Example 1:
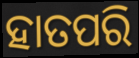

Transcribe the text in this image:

ହାତପରି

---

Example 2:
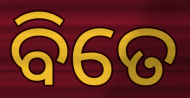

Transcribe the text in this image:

ବିତେ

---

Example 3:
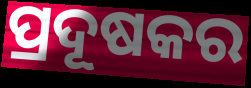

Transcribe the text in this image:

ପ୍ରଦୂଷକର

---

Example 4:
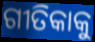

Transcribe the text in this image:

ଗୀତିକାକୁ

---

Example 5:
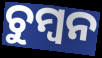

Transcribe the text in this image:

ଚୁମ୍ବନ